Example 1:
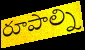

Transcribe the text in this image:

రూపాల్ని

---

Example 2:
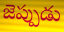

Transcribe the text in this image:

జెప్పుడు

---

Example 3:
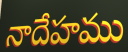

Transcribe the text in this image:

నాదేహము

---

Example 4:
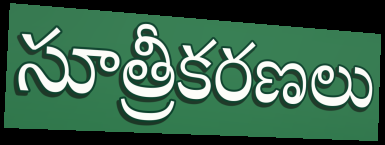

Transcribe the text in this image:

సూత్రీకరణలు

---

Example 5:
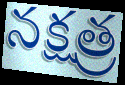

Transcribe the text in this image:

నక్షత్ర